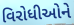
વિરોધીઓને